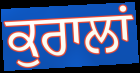
ਕੁਰਾਲਾਂ